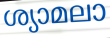
ശ്യാമലാ